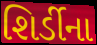
શિર્ડીના